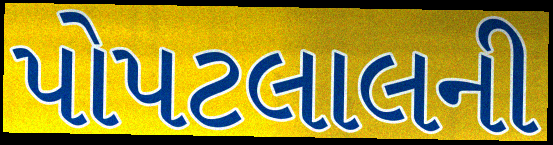
પોપટલાલની